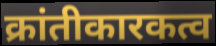
क्रांतीकारकत्व